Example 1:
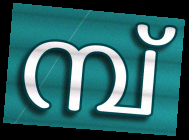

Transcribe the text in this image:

മ്പ്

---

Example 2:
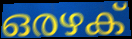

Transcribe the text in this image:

ഒരഴക്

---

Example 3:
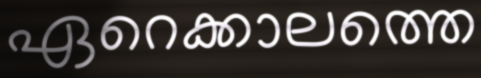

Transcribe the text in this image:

ഏറെക്കാലത്തെ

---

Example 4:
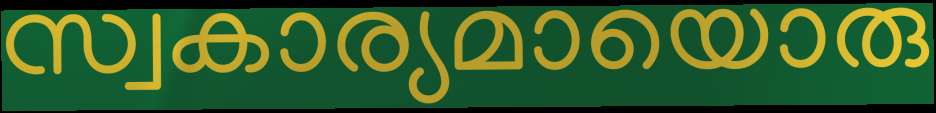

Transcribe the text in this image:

സ്വകാര്യമായൊരു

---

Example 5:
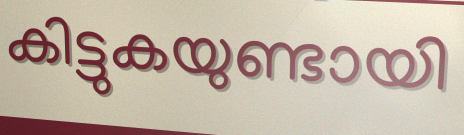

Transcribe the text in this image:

കിട്ടുകയുണ്ടായി